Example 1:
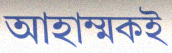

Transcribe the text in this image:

আহাম্মকই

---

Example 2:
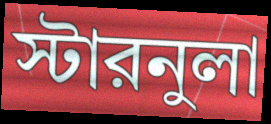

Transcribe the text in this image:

স্টারনুলা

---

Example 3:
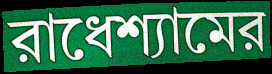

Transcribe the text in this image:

রাধেশ্যামের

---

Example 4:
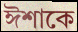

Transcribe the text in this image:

ঈশাকে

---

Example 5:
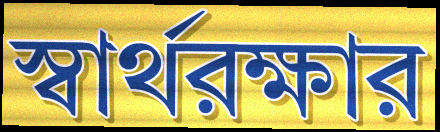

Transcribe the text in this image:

স্বার্থরক্ষার